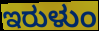
ಇರುಳುಂ